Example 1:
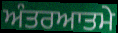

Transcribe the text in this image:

ਅੰਤਰਆਤਮੇ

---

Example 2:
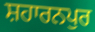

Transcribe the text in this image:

ਸ਼ਹਾਰਨਪੁਰ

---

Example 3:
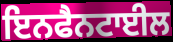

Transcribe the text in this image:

ਇਨਫੈਨਟਾਈਲ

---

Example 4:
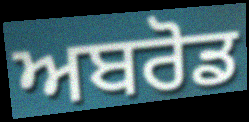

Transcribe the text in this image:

ਅਬਰੋਡ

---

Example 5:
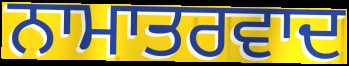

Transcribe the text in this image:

ਨਾਮਾਤਰਵਾਦ